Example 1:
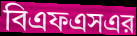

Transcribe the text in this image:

বিএফএসএর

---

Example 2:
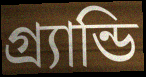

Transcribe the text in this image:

গ্র্যান্ডি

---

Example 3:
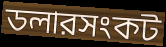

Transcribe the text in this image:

ডলারসংকট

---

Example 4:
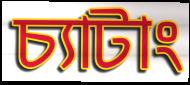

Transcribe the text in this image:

চ্যাটাং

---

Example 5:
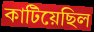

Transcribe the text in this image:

কাটিয়েছিল